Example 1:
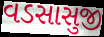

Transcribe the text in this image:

વડસાસુજી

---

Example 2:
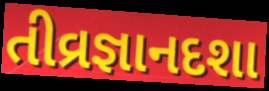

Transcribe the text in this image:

તીવ્રજ્ઞાનદશા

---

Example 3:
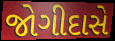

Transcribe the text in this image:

જોગીદાસે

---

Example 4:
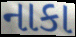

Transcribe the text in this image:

નાકા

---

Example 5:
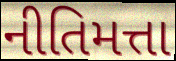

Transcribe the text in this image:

નીતિમત્તા